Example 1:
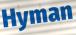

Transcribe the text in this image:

Hyman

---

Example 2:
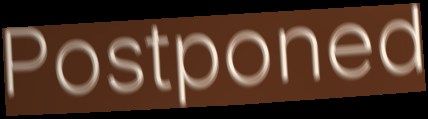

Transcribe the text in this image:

Postponed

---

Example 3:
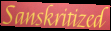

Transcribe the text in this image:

Sanskritized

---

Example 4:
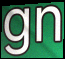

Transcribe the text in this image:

gn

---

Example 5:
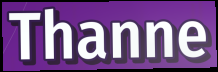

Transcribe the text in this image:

Thanne